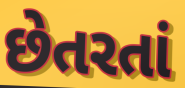
છેતરતાં